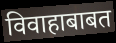
विवाहाबाबत